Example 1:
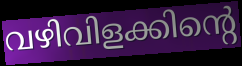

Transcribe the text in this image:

വഴിവിളക്കിന്റെ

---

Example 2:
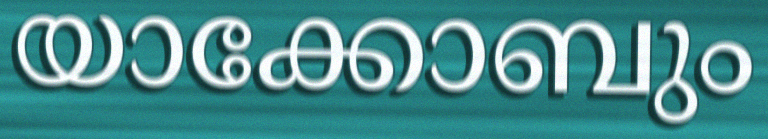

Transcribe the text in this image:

യാക്കോബും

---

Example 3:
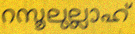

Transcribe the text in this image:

റസൂലുല്ലാഹ്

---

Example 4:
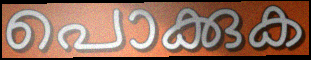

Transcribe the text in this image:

പൊക്കുക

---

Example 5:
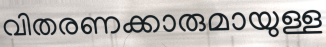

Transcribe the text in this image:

വിതരണക്കാരുമായുള്ള